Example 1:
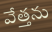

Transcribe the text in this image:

వేత్తను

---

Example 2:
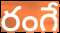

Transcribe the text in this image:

రంగే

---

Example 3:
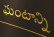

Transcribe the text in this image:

ఘంటాన్ని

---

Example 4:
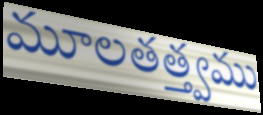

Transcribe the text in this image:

మూలతత్త్వము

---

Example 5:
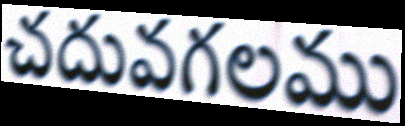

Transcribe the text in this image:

చదువగలము